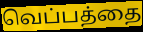
வெப்பத்தை